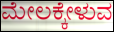
ಮೇಲಕ್ಕೇಳುವ